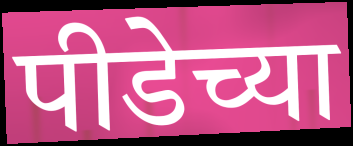
पीडेच्या